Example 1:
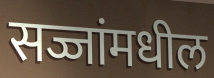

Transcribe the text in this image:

सज्जांमधील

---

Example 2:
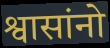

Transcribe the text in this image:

श्वासांनो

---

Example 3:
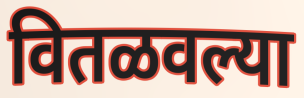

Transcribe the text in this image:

वितळवल्या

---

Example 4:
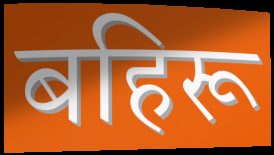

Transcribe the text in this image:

बहिरू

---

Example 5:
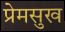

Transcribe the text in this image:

प्रेमसुख